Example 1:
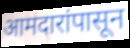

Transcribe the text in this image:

आमदारांपासून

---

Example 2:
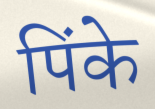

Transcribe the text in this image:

पिंके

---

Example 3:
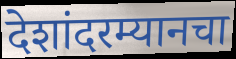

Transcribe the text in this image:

देशांदरम्यानचा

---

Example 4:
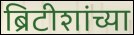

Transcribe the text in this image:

ब्रिटीशांच्या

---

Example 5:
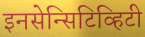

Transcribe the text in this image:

इनसेन्सिटिव्हिटी